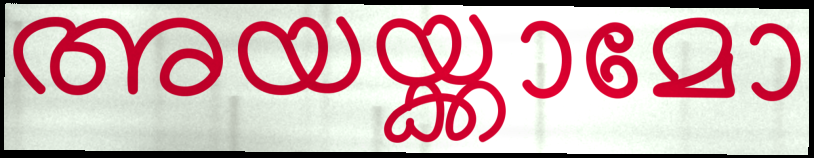
അയയ്ക്കാമോ